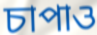
চাপাও